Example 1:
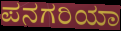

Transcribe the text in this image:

ಪನಗರಿಯಾ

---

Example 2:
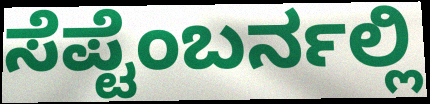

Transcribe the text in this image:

ಸೆಪ್ಟೆಂಬರ್ನಲ್ಲಿ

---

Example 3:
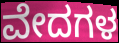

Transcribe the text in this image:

ವೇದಗಳ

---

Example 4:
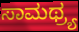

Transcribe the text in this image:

ಸಾಮಥ್ರ್ಯ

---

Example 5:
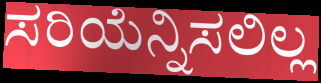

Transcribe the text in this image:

ಸರಿಯೆನ್ನಿಸಲಿಲ್ಲ